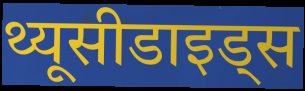
थ्यूसीडाइड्स